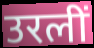
उरलीं